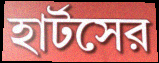
হার্টসের